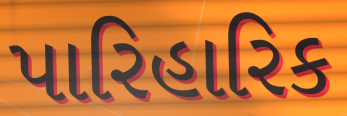
પારિહારિક